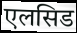
एलसिड